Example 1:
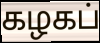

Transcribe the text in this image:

கழகப்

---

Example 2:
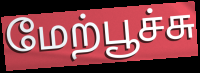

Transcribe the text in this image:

மேற்பூச்சு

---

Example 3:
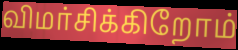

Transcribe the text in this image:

விமர்சிக்கிறோம்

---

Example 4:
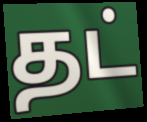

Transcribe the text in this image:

தட்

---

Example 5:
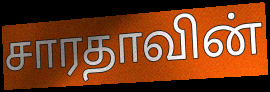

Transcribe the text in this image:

சாரதாவின்